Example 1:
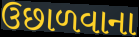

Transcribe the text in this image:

ઉછાળવાના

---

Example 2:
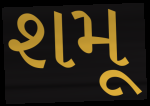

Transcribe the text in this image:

શમૂ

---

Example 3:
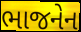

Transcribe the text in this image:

ભાજનેન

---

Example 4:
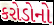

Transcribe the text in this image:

કરોડોનો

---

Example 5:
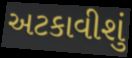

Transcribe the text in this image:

અટકાવીશું